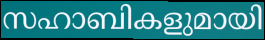
സഹാബികളുമായി